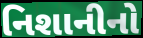
નિશાનીનો